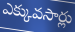
ఎక్కువసార్లు